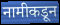
नामीकडून